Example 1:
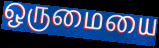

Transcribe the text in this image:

ஒருமையை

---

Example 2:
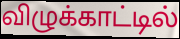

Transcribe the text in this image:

விழுக்காட்டில்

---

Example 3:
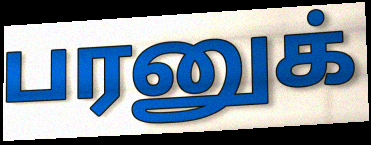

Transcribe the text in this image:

பரனுக்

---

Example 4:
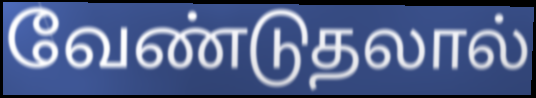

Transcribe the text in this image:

வேண்டுதலால்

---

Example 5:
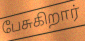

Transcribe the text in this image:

பேசுகிறார்